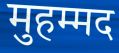
मुहम्‍मद